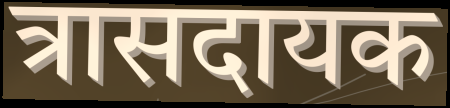
त्रासदायक